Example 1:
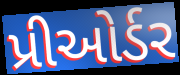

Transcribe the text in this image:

પ્રીઓર્ડર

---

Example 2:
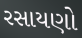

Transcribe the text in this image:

રસાયણો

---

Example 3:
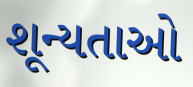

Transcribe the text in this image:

શૂન્યતાઓ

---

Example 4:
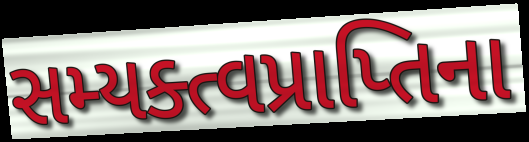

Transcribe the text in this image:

સમ્યક્ત્વપ્રાપ્તિના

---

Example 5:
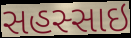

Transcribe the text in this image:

સહસ્સાઇ